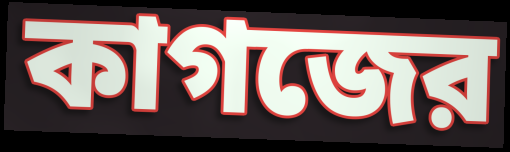
কাগজের